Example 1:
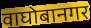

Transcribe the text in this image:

वाघोबानगर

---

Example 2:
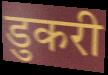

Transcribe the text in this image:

डुकरी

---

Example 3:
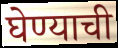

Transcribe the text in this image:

घेण्याची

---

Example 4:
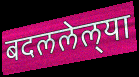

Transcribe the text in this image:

बदललेल्या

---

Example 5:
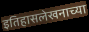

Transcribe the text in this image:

इतिहासलेखनाच्या